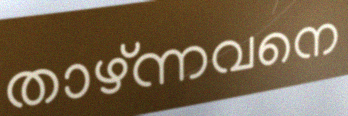
താഴ്ന്നവനെ